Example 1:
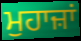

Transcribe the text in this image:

ਮੁਹਾਜ਼ਾਂ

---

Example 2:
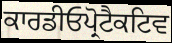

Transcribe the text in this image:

ਕਾਰਡੀਓਪ੍ਰੋਟੈਕਟਿਵ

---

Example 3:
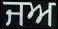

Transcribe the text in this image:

ਜਅ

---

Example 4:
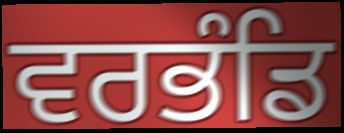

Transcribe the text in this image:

ਵਰਭੰਡਿ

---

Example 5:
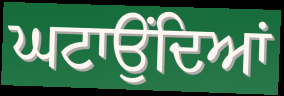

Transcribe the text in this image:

ਘਟਾਉਂਦਿਆਂ